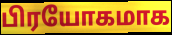
பிரயோகமாக